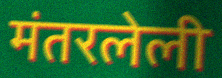
मंतरलेली